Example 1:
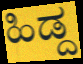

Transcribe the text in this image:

ಹಿಡ್ದ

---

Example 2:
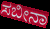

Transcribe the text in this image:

ಸಬೀನಾ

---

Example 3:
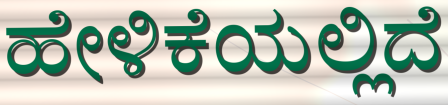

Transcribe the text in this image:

ಹೇಳಿಕೆಯಲ್ಲಿದೆ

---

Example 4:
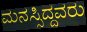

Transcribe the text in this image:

ಮನಸ್ಸಿದ್ದವರು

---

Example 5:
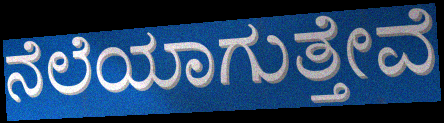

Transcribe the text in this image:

ನೆಲೆಯಾಗುತ್ತೇವೆ